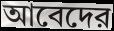
আবেদের